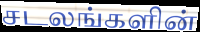
சடலங்களின்